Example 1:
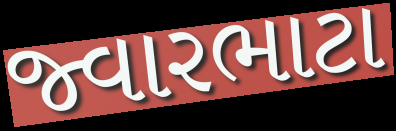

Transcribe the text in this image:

જ્વારભાટા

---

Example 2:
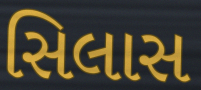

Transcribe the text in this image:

સિલાસ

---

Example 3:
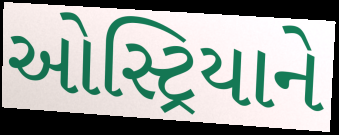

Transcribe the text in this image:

ઓસ્ટ્રિયાને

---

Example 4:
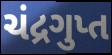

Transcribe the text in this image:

ચંદ્રગુપ્ત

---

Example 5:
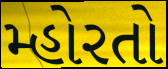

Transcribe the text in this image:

મ્હોરતો